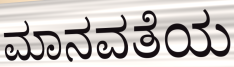
ಮಾನವತೆಯ